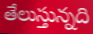
తేలుస్తున్నది